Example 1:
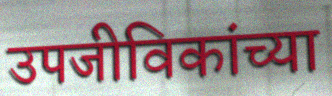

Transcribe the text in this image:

उपजीविकांच्या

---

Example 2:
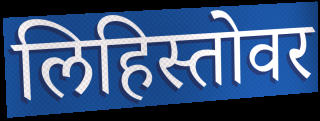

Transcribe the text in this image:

लिहिस्तोवर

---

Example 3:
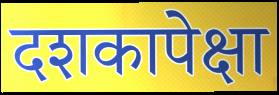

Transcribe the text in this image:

दशकापेक्षा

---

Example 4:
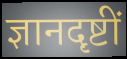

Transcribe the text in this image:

ज्ञानदृष्टीं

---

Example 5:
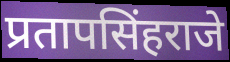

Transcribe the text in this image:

प्रतापसिंहराजे